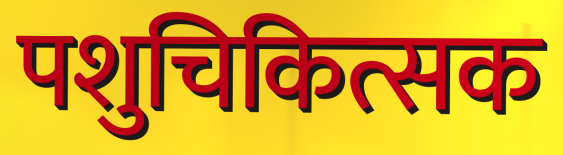
पशुचिकित्सक